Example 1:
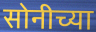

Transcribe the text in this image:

सोनीच्या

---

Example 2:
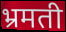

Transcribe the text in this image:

भ्रमती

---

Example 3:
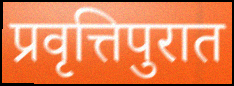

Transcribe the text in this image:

प्रवृत्तिपुरात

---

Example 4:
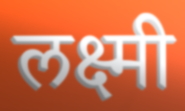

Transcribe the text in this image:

लक्ष्मी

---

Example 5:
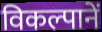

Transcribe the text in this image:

विकल्पानें